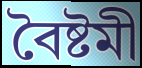
বৈষ্টমী